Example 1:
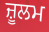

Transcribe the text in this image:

ਜ਼ੂਲਮ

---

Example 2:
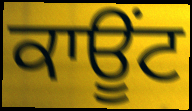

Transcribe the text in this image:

ਕਾਊਂਟ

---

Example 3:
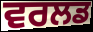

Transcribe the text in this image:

ਵਰਲਡ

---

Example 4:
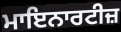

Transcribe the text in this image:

ਮਾਇਨਾਰਟੀਜ਼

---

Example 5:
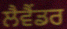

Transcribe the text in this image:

ਲੈਵੈਂਡਰ